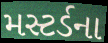
મસ્ટર્ડના